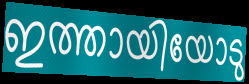
ഇത്തായിയോടു